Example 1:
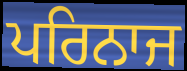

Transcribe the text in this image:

ਪਰਿਨਾਜ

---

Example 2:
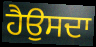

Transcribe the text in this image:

ਹੈਉਸਦਾ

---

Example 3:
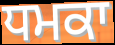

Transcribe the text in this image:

ਧਮਕਾ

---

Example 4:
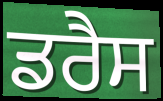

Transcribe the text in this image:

ਡਰੈਸ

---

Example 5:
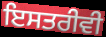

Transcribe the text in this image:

ਇਸਤਰੀਵੀ